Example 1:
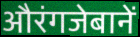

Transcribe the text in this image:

औरंगजेबानें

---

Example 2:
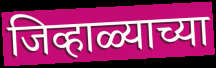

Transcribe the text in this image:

जिव्हाळ्याच्या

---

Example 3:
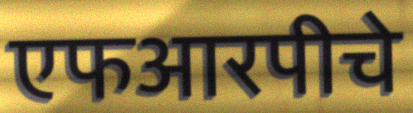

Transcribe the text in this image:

एफआरपीचे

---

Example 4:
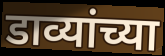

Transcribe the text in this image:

डाव्यांच्या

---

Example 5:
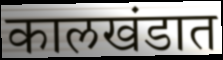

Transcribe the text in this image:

कालखंडात